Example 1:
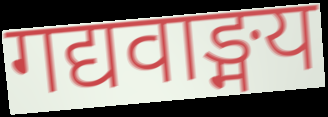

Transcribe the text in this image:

गद्यवाङ्मय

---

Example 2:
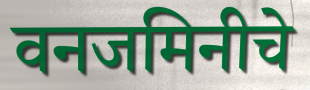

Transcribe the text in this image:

वनजमिनीचे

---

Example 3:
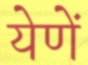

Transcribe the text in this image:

येणें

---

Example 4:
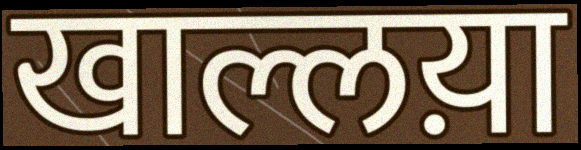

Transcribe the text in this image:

खाल्लय़ा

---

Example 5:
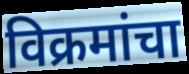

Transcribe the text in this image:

विक्रमांचा